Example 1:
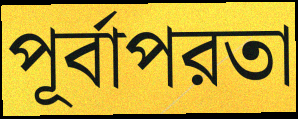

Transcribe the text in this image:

পূর্বাপরতা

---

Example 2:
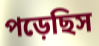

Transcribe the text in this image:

পড়েছিস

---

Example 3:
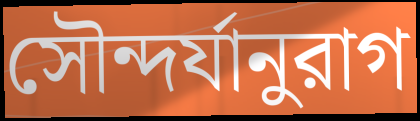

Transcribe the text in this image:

সৌন্দর্যানুরাগ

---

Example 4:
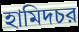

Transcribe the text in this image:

হামিদচর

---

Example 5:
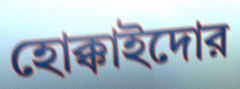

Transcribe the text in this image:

হোক্কাইদোর